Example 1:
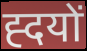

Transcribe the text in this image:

ह्दयों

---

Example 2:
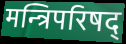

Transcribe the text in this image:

मन्त्रिपरिषद्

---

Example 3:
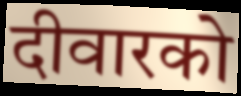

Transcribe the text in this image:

दीवारको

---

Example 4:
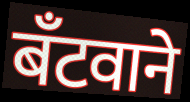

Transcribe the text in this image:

बँटवाने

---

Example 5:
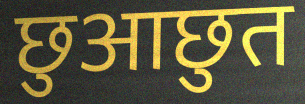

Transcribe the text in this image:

छुआछुत